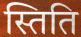
स्तिति